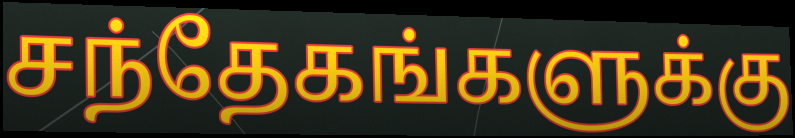
சந்தேகங்களுக்கு